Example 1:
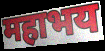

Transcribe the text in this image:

महाभय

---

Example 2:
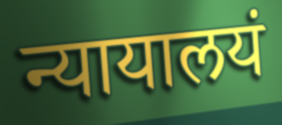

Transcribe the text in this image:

न्यायालयं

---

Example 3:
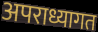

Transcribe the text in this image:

अपराध्यागत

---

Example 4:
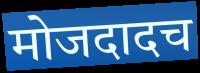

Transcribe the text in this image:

मोजदादच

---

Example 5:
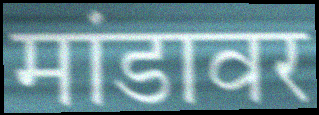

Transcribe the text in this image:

मांडावर